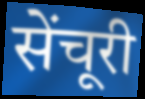
सेंचूरी